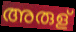
അരുള്